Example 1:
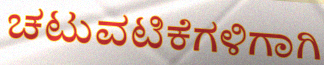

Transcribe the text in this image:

ಚಟುವಟಿಕೆಗಳಿಗಾಗಿ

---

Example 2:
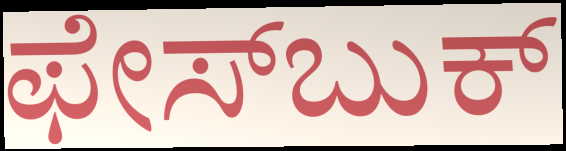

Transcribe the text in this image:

ಫೇಸ್‍ಬುಕ್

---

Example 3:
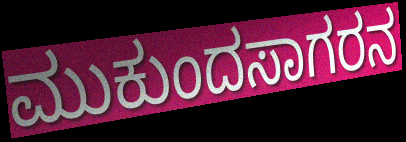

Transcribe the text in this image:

ಮುಕುಂದಸಾಗರನ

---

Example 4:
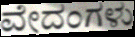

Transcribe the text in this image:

ವೇದಂಗಳು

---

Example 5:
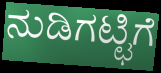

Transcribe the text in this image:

ನುಡಿಗಟ್ಟಿಗೆ